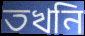
তখনি